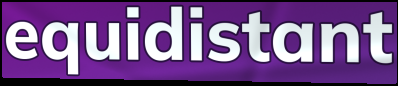
equidistant